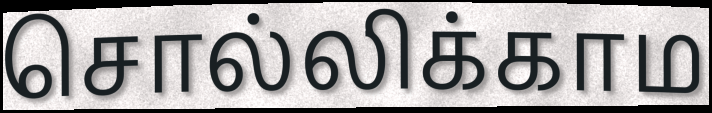
சொல்லிக்காம